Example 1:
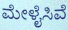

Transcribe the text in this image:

ಮೇಳೈಸಿವೆ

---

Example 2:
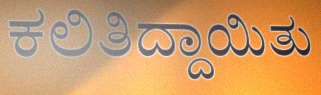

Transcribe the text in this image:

ಕಲಿತಿದ್ದಾಯಿತು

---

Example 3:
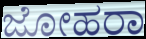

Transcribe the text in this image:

ಜೋಹರಾ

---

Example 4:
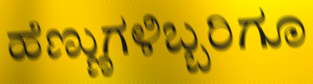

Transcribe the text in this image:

ಹೆಣ್ಣುಗಳಿಬ್ಬರಿಗೂ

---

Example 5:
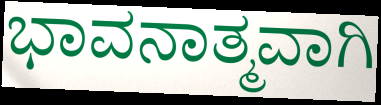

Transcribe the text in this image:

ಭಾವನಾತ್ಮವಾಗಿ